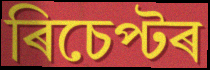
ৰিচেপ্টৰ